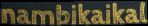
nambikaikal